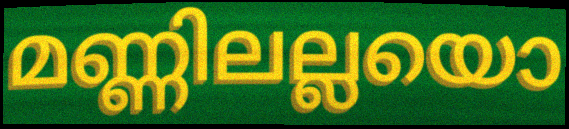
മണ്ണിലല്ലയൊ